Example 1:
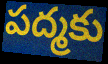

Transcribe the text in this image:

పద్మకు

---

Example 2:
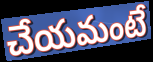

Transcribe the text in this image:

చేయమంటే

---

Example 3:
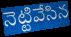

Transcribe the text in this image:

నెట్టివేసిన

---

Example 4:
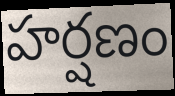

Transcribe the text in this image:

హర్షణం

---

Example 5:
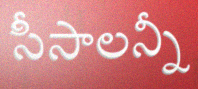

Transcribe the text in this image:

సీసాలన్నీ